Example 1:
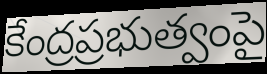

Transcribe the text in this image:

కేంద్రప్రభుత్వంపై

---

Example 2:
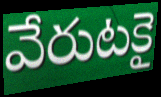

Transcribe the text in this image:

వేరుటకై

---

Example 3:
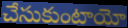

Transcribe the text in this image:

చేసుకుంటాయో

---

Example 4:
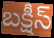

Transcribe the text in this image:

బక్షీస్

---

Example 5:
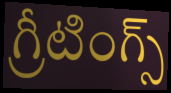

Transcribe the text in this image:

గ్రీటింగ్స్